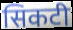
सिकटी